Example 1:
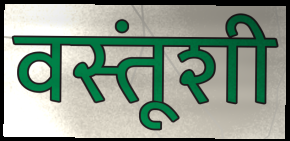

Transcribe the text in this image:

वस्तूंशी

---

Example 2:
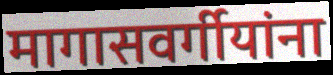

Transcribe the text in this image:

मागासवर्गीयांना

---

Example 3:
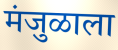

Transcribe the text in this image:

मंजुळाला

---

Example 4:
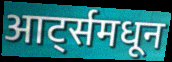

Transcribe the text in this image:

आर्ट्समधून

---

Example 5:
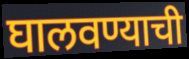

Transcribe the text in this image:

घालवण्याची